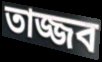
তাজ্জব